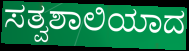
ಸತ್ವಶಾಲಿಯಾದ